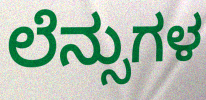
ಲೆನ್ಸುಗಳ